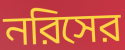
নরিসের